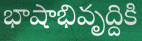
భాషాభివృద్దికి